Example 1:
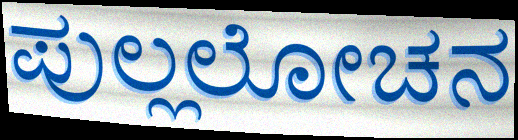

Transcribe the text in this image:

ಪುಲ್ಲಲೋಚನ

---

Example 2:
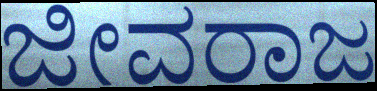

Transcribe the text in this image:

ಜೀವರಾಜ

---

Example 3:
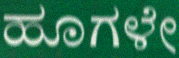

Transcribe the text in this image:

ಹೂಗಳೇ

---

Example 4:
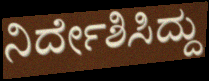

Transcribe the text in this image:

ನಿರ್ದೇಶಿಸಿದ್ದು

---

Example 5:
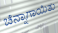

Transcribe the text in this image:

ಚೆನ್ನಾಗಾಯಿತು